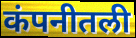
कंपनीतली